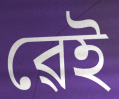
ৱেই